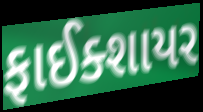
ફાઈક્શાયર